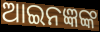
ଆଇନଜ୍ଞଙ୍କ